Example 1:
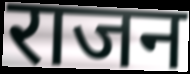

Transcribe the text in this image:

राजन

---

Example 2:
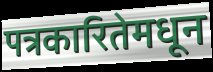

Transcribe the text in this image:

पत्रकारितेमधून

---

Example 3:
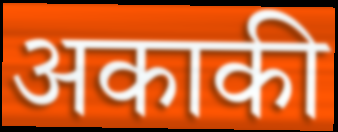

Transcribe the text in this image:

अकाकी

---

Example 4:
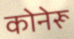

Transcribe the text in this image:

कोनेरू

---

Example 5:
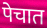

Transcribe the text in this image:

पेचात